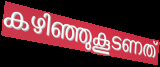
കഴിഞ്ഞുകൂടണത്